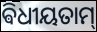
ଵିଧୀୟତାମ୍